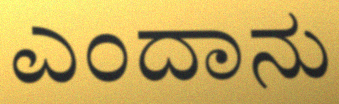
ಎಂದಾನು